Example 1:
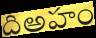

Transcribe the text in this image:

దిఅహం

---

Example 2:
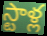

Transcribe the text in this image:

స్టాళ్ల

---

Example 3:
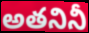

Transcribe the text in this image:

అతనినీ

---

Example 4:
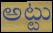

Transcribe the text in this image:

అట్టు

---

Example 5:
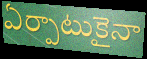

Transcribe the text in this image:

ఏర్పాటుకైనా